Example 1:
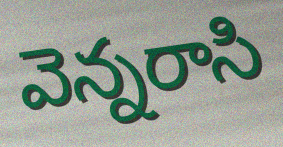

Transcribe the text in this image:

వెన్నరాసి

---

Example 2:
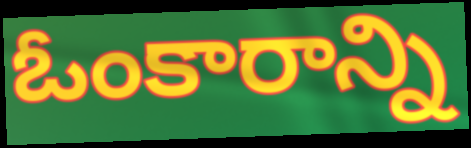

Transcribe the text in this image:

ఓంకారాన్ని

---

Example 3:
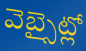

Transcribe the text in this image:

వెబ్సైట్లో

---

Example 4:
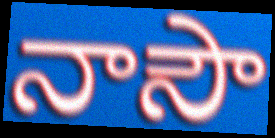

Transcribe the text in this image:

నాసౌ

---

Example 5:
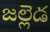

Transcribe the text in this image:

జల్లెడ